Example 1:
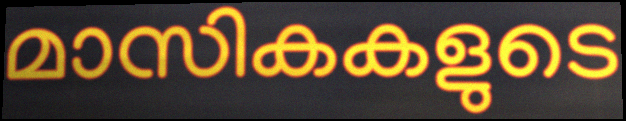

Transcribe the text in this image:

മാസികകളുടെ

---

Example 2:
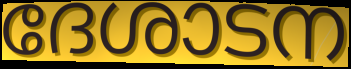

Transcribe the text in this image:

ദേശാടന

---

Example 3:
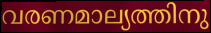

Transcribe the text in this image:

വരണമാല്യത്തിനു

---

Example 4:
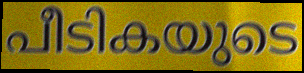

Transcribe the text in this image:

പീടികയുടെ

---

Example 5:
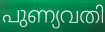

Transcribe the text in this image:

പുണ്യവതി